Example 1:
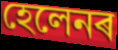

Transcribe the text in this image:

হেলেনৰ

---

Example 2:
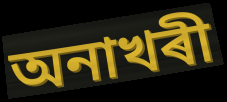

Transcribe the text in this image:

অনাখৰী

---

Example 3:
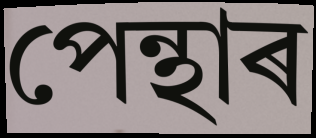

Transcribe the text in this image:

পেন্থাৰ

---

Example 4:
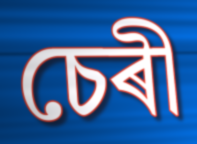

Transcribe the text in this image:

চেৰী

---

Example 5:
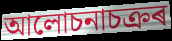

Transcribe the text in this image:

আলোচনাচক্ৰৰ